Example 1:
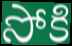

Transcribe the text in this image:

సోకి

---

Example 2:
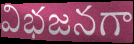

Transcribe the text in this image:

విభజనగా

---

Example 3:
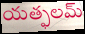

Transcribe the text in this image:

యత్ఫలమ్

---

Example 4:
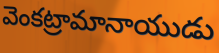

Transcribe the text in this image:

వెంకట్రామానాయుడు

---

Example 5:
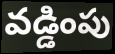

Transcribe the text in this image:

వడ్డింపు